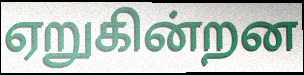
ஏறுகின்றன